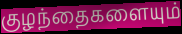
குழந்தைகளையும்